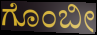
ಗೊಂಬೀ